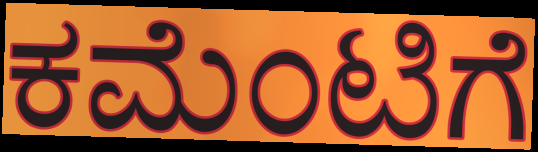
ಕಮೆಂಟಿಗೆ